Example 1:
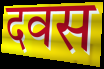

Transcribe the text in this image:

दवस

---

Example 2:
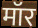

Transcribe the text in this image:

मॉर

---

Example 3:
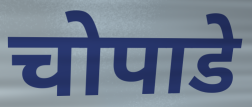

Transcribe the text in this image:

चोपाडे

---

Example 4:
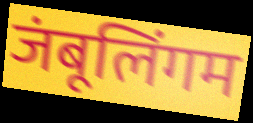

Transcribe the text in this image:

जंबूलिंगम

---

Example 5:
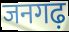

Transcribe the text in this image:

जनगढ़